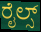
ರೈಲ್ಸ್